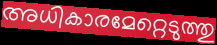
അധികാരമേറ്റെടുത്തു